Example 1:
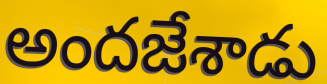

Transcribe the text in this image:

అందజేశాడు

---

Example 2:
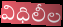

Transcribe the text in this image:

విధిలీల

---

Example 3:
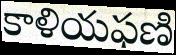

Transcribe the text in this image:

కాళియఫణి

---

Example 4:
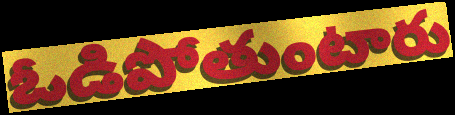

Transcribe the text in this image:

ఓడిపోతుంటారు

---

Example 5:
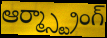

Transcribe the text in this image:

ఆర్మ్స్ట్రాంగ్